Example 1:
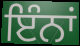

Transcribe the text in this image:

ਇੰਨਾਂ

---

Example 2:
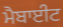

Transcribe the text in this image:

ਮੈਬਾਈਟ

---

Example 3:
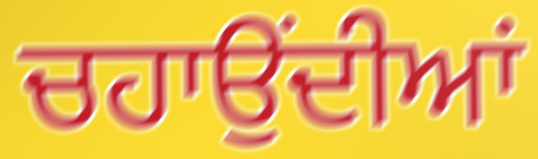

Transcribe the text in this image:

ਚਹਾਉਂਦੀਆਂ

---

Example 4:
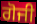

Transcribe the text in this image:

ਗੋਜੀ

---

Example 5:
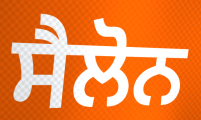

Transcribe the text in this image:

ਸੈਲੋਨ